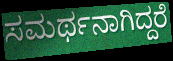
ಸಮರ್ಥನಾಗಿದ್ದರೆ